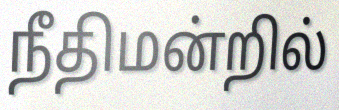
நீதிமன்றில்